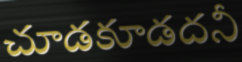
చూడకూడదనీ